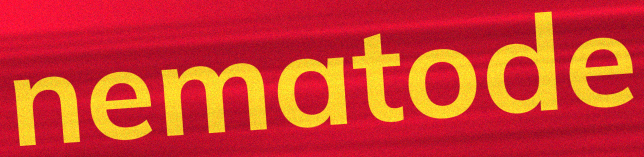
nematode